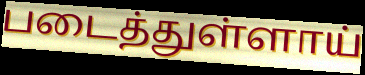
படைத்துள்ளாய்